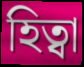
হিত্বা